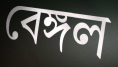
বেঙ্গল